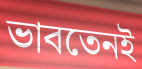
ভাবতেনই